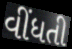
વીંધતી